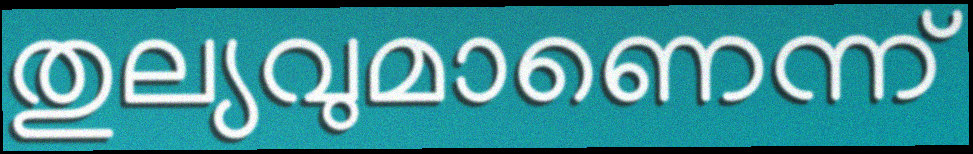
തുല്യവുമാണെന്ന്